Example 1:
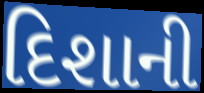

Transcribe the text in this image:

દિશાની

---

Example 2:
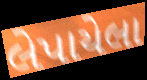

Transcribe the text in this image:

લેપાયેલા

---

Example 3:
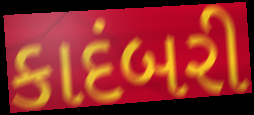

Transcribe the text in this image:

કાદંબરી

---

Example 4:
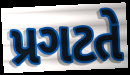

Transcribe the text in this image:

પ્રગટતે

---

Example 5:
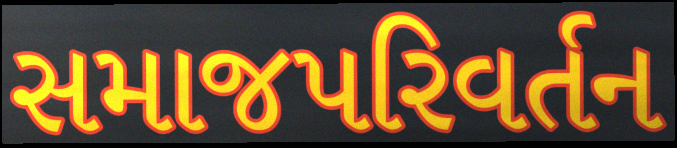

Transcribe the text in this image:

સમાજપરિવર્તન